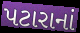
પટારાનાં